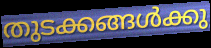
തുടക്കങ്ങൾക്കു